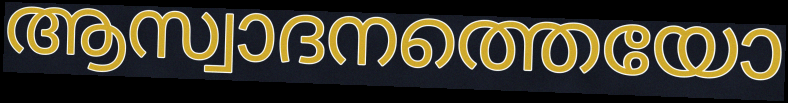
ആസ്വാദനത്തെയോ